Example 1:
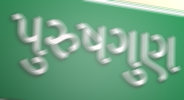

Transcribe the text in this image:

પુરુષગુણ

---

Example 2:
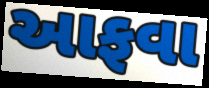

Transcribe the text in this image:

આફવા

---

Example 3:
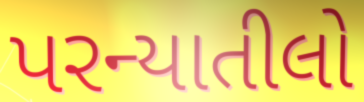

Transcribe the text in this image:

પરન્યાતીલો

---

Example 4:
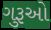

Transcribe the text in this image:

ગુરૂઓ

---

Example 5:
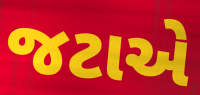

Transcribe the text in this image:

જટાએ